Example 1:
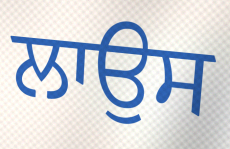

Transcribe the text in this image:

ਲਾਉਸ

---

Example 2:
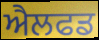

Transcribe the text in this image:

ਐਲਫਡ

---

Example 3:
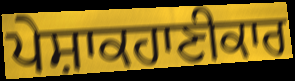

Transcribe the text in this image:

ਪੇਸ਼ਾਕਹਾਣੀਕਾਰ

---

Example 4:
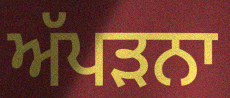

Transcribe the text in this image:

ਅੱਪੜਨਾ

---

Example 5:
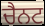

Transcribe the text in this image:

ਚੈਨਟ